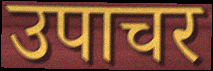
उपाचर